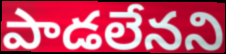
పాడలేనని